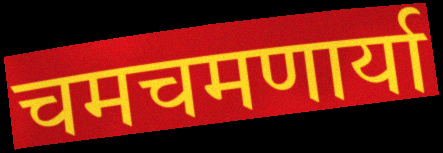
चमचमणार्या